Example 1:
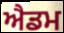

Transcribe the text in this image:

ਐਡਮ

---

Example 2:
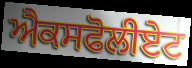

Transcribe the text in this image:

ਐਕਸਫੋਲੀਏਟ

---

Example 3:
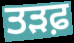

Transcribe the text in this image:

ਤੜਫ਼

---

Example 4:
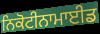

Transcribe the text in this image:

ਨਿਕੋਟੀਨਾਮਾਈਡ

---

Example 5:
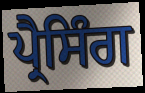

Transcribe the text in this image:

ਪ੍ਰੈਸਿੰਗ